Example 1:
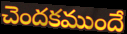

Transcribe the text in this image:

చెందకముందే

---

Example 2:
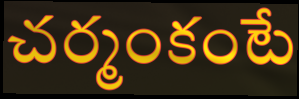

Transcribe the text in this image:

చర్మంకంటే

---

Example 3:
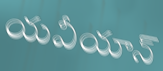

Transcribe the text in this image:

యవీయాన్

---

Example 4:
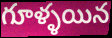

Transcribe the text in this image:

గూళ్ళయిన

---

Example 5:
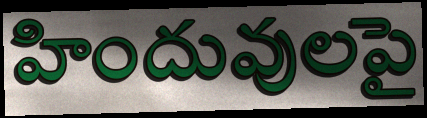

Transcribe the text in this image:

హిందువులపై